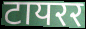
टायरर